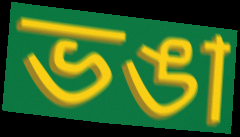
ভঙা